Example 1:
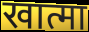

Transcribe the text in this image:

खात्मा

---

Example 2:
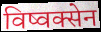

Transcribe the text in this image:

विष्वक्सेन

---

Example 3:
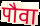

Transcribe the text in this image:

पौवा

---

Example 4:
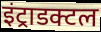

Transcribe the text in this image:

इंट्राडक्टल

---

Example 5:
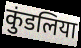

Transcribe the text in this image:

कुंडलिया